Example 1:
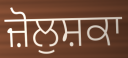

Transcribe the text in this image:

ਜ਼ੋਲੁਸ਼ਕਾ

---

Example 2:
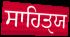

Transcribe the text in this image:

ਸਾਹਿਤੑਯ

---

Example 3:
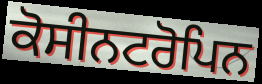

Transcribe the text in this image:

ਕੋਸੀਨਟਰੋਪਿਨ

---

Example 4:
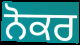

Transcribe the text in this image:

ਨੋਕਰ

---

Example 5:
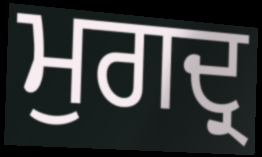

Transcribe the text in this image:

ਮੁਗਦ੍ਰ